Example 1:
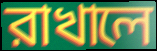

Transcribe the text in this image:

রাখালে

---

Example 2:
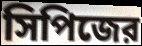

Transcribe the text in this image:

সিপিজের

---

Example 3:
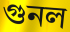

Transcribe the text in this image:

গুনল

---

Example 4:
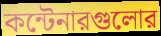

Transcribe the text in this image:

কন্টেনারগুলোর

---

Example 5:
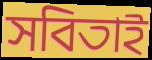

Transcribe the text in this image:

সবিতাই